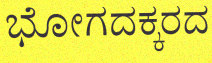
ಭೋಗದಕ್ಕರದ